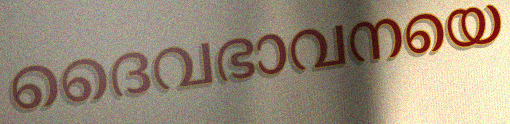
ദൈവഭാവനയെ